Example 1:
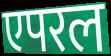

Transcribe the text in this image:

एपरल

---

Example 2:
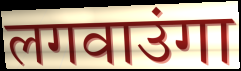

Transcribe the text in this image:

लगवाउंगा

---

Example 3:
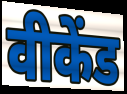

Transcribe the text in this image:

वीकेंड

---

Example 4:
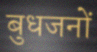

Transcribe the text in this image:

बुधजनों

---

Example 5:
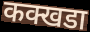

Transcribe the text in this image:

कक्खडा